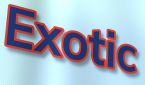
Exotic